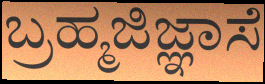
ಬ್ರಹ್ಮಜಿಜ್ಞಾಸೆ